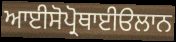
ਆਈਸੋਪ੍ਰੋਥਾਈੳਲਾਨ